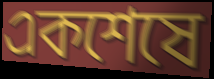
একশেষে